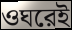
ওঘরেই